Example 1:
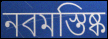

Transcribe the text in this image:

নবমস্তিষ্ক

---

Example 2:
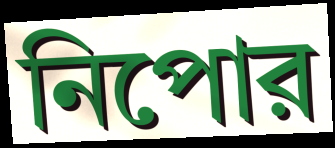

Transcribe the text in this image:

নিপোর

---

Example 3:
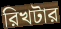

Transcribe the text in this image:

রিখটার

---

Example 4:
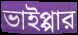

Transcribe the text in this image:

ভাইপ্পার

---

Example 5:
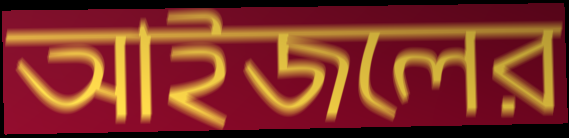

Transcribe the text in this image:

আইজলের